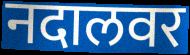
नदालवर